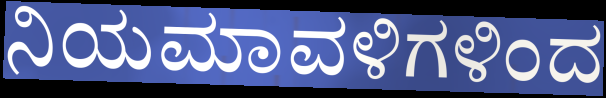
ನಿಯಮಾವಳಿಗಳಿಂದ